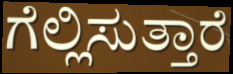
ಗೆಲ್ಲಿಸುತ್ತಾರೆ